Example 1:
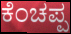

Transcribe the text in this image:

ಕೆಂಚಪ್ಪ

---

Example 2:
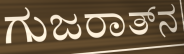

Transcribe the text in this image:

ಗುಜರಾತ್‍ನ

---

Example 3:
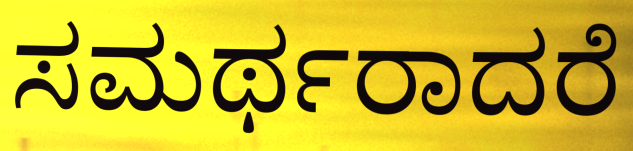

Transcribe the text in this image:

ಸಮರ್ಥರಾದರೆ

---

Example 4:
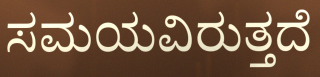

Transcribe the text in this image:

ಸಮಯವಿರುತ್ತದೆ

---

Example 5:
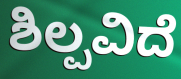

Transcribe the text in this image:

ಶಿಲ್ಪವಿದೆ